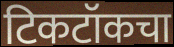
टिकटॉकचा